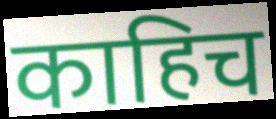
काहिच